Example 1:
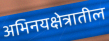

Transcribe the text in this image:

अभिनयक्षेत्रातील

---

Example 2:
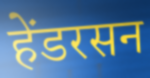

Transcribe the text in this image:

हेंडरसन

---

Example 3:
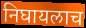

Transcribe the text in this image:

निघायलाच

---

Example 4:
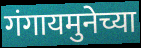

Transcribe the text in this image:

गंगायमुनेच्या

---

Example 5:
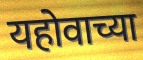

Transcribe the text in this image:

यहोवाच्या